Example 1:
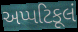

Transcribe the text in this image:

અપ્પટિકૂલં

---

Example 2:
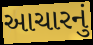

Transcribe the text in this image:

આચારનું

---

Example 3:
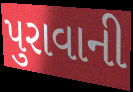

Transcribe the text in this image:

પુરાવાની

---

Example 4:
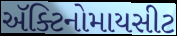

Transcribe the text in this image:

ઍક્ટિનોમાયસીટ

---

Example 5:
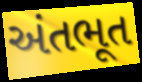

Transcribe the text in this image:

અંતભૂત